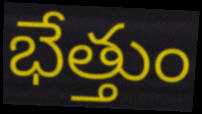
భేత్తుం